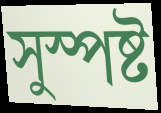
সুস্পষ্ট